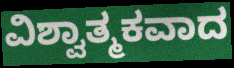
ವಿಶ್ವಾತ್ಮಕವಾದ